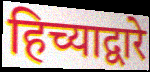
हिच्याद्वारे